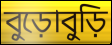
বুড়োবুড়ি